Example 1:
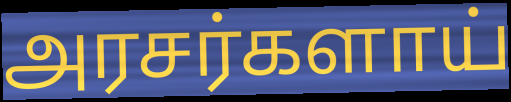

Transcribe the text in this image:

அரசர்களாய்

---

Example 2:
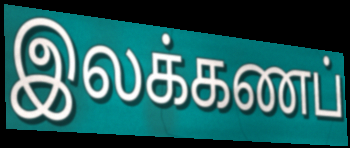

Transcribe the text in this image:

இலக்கணப்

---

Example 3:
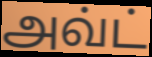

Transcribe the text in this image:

அவ்ட்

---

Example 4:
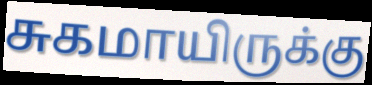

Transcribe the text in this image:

சுகமாயிருக்கு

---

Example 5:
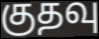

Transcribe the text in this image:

குதவு